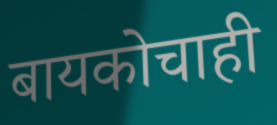
बायकोचाही